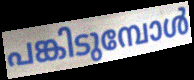
പങ്കിടുമ്പോൾ